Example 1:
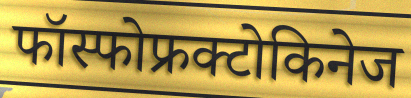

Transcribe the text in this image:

फॉस्फोफ्रक्टोकिनेज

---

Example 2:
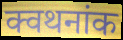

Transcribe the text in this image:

क्वथनांक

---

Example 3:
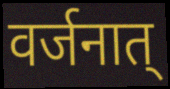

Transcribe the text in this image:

वर्जनात्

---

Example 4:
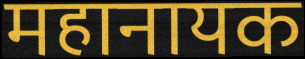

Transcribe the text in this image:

महानायक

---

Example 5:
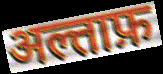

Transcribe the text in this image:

अल्ताफ़